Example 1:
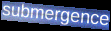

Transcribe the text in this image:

submergence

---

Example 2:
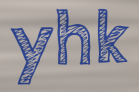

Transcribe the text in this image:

yhk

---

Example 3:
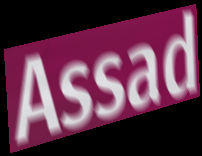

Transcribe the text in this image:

Assad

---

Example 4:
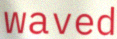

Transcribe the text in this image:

waved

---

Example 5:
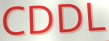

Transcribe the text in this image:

CDDL